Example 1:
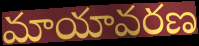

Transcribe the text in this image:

మాయావరణ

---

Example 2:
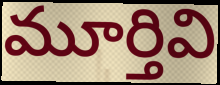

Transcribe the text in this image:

మూర్తివి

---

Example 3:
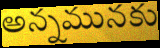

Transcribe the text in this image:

అన్నమునకు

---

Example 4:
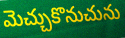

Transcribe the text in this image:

మెచ్చుకొనుచును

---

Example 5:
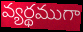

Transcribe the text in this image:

వ్యర్థముగా